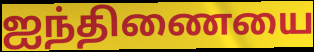
ஐந்திணையை